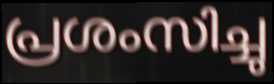
പ്രശംസിച്ചു